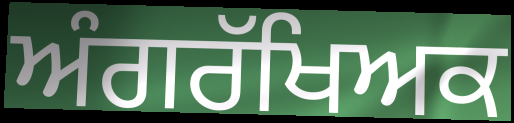
ਅੰਗਰੱਖਿਅਕ